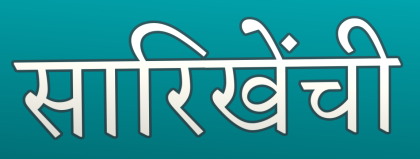
सारिखेंची